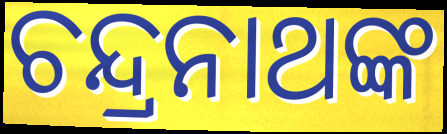
ଚନ୍ଦ୍ରନାଥଙ୍କ